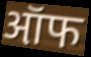
ऑ़फ